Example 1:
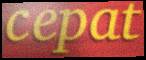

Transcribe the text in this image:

cepat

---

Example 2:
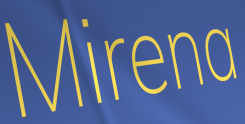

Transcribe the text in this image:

Mirena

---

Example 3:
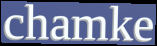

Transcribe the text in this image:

chamke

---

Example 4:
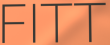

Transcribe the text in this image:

FITT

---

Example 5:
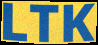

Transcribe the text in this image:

LTK